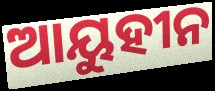
ଆୟୁହୀନ